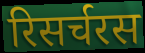
रिसर्चरस